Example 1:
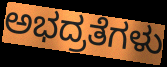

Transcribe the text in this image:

ಅಭದ್ರತೆಗಳು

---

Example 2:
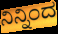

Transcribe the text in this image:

ನಿನ್ನಿಂದ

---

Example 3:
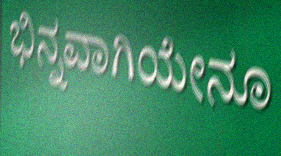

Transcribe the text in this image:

ಭಿನ್ನವಾಗಿಯೇನೂ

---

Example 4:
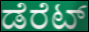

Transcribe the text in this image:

ಡೆರೆಟ್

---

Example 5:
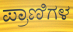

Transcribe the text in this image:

ಪ್ರಾಣಿಗಳ